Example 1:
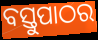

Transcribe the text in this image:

ବସ୍ତୁପାଠର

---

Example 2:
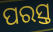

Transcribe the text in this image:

ପରସ୍ତ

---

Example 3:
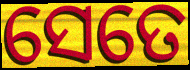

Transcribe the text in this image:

ସେତେ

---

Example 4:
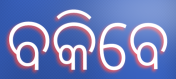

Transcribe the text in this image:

ବକିବେ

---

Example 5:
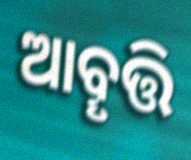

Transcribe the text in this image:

ଆବୄତ୍ତି